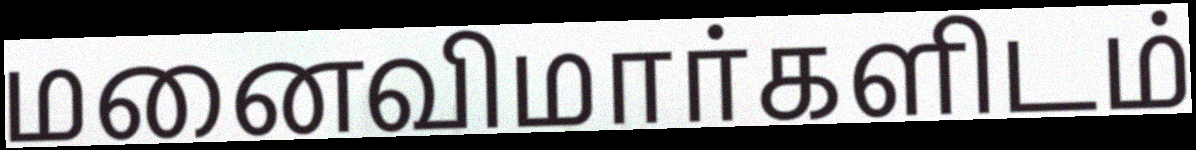
மனைவிமார்களிடம்